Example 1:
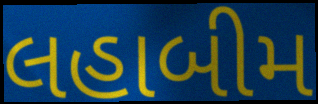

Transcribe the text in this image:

લહાબીમ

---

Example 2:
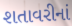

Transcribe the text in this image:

શતાવરીનાં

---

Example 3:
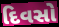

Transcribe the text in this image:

દિવસો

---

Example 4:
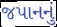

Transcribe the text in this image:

જપાનનું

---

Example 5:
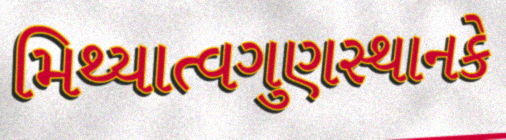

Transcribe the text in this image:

મિથ્યાત્વગુણસ્થાનકે